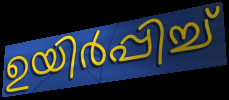
ഉയിർപ്പിച്ച്